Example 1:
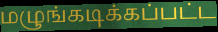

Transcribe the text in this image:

மழுங்கடிக்கப்பட்ட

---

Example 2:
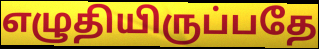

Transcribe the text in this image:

எழுதியிருப்பதே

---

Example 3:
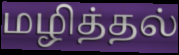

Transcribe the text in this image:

மழித்தல்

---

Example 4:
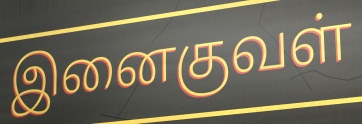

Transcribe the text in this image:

இனைகுவள்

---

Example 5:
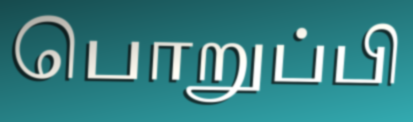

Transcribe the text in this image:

பொறுப்பி